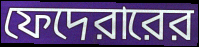
ফেদেরারের